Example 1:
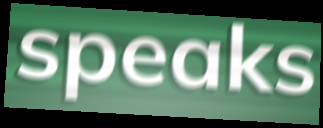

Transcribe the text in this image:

speaks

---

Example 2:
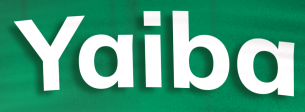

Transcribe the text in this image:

Yaiba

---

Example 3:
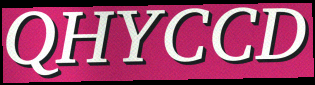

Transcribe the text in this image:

QHYCCD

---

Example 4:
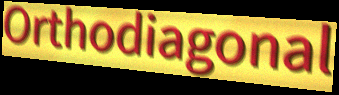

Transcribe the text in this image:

Orthodiagonal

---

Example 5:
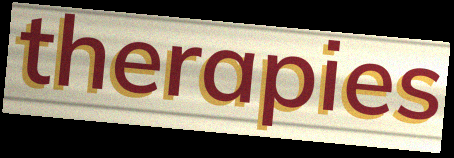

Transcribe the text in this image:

therapies